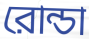
রোন্ডা